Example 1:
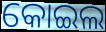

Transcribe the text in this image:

କୋଇଲ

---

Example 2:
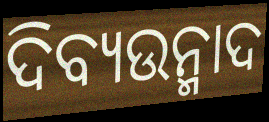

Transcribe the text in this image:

ଦିବ୍ୟଉନ୍ମାଦ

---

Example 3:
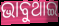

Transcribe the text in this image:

ଭାବୁଥାଇ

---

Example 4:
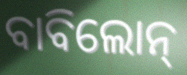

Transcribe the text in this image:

ବାବିଲୋନ୍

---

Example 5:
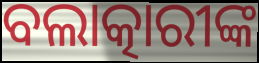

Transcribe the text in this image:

ବଲାତ୍କାରୀଙ୍କ